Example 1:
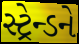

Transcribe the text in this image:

સ્ટ્રેન્ડને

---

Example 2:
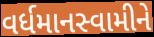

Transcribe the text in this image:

વર્ધમાનસ્વામીને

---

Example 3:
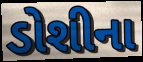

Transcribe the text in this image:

ડોશીના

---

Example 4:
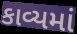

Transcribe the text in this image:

કાવ્યમાં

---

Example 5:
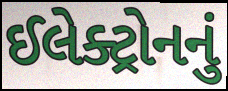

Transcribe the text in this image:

ઈલેક્ટ્રોનનું